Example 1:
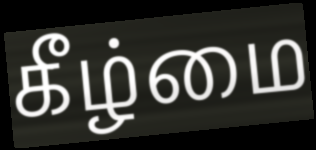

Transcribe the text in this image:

கீழ்மை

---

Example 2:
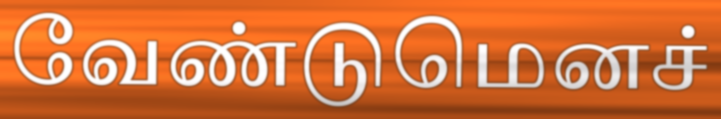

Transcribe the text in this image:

வேண்டுமெனச்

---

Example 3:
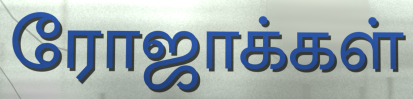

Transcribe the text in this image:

ரோஜாக்கள்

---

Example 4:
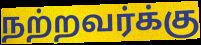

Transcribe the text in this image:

நற்றவர்க்கு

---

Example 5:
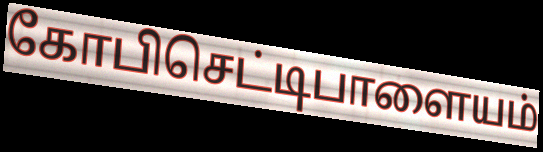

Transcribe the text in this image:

கோபிசெட்டிபாளையம்